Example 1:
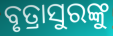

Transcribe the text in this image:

ବୃତ୍ରାସୁରଙ୍କୁ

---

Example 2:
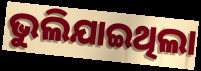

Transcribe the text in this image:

ଭୁଲିଯାଇଥିଲା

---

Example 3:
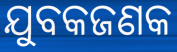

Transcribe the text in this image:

ଯୁବକଜଣକ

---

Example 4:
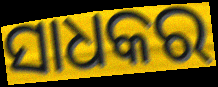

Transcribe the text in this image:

ସାଧକର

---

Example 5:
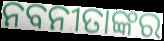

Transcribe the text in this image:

ନବନୀତାଙ୍କର